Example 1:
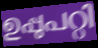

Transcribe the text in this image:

ഉപ്പുപറ്റി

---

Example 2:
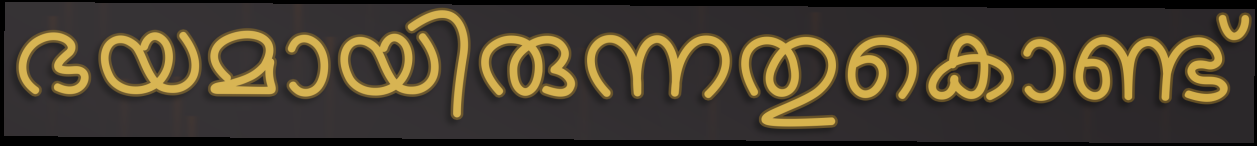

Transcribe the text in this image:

ഭയമായിരുന്നതുകൊണ്ട്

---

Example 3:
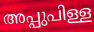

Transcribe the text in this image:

അപ്പുപിള്ള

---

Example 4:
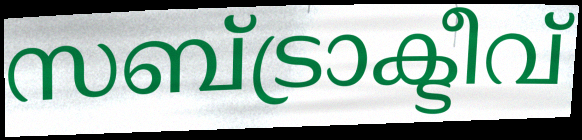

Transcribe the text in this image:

സബ്ട്രാക്ടീവ്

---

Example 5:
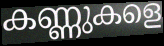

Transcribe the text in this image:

കണ്ണുകളെ